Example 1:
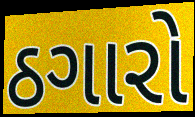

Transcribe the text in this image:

ઠગારો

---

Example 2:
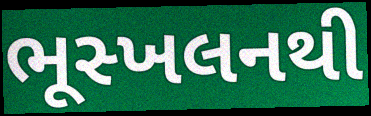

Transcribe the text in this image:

ભૂસ્ખલનથી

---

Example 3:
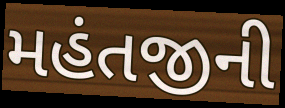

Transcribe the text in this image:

મહંતજીની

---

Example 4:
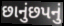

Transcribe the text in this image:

છાનુંછપનું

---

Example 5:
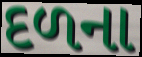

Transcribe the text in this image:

દળના